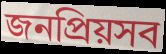
জনপ্রিয়সব